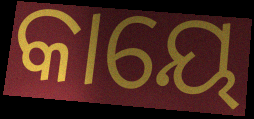
କାୟେ